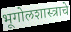
भूगोलशास्त्राचे